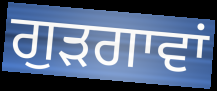
ਗੁੜਗਾਵਾਂ